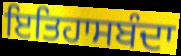
ਇਤਿਹਾਸਬੰਦਾ